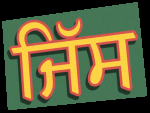
ਜਿੱਸ